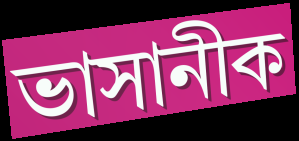
ভাসানীক